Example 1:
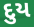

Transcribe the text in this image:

દુય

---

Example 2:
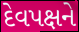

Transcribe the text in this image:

દેવપક્ષને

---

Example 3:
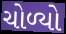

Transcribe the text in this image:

ચોળ્યો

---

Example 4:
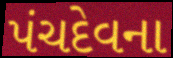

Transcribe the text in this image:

પંચદેવના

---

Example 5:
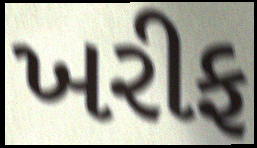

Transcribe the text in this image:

ખરીફ